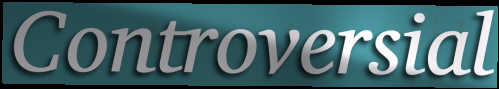
Controversial